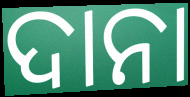
ଦାନା